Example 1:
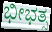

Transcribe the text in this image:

ಭೀಭತ್ಸ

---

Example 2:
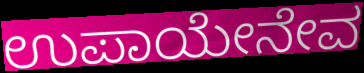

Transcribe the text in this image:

ಉಪಾಯೇನೇವ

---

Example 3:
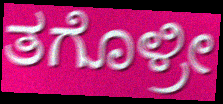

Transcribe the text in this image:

ತಗೊಳ್ರೀ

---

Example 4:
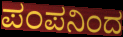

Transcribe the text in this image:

ಪಂಪನಿಂದ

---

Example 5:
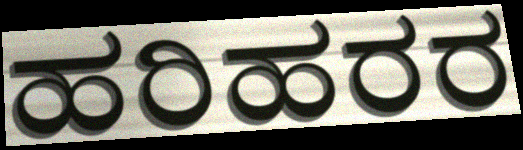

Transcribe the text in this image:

ಹರಿಹರರ